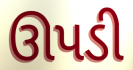
ઊપડી